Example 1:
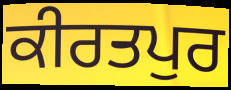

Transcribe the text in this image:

ਕੀਰਤਪੁਰ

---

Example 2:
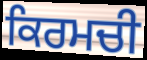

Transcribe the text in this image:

ਕਿਰਮਚੀ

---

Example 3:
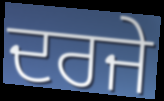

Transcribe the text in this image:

ਦਰਜੇ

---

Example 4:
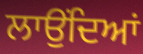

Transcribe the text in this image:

ਲਾਉਂਦਿਆਂ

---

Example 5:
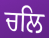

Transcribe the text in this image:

ਚਲਿ